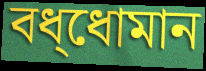
বধ্ধোমান